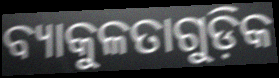
ବ୍ୟାକୁଳତାଗୁଡ଼ିକ